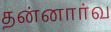
தன்னார்வ